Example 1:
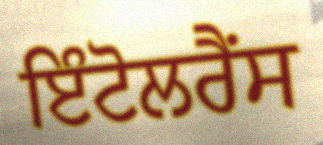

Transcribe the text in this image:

ਇੰਟੋਲਰੈਂਸ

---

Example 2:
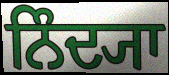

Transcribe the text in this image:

ਨਿੰਦ੍ਯਾ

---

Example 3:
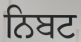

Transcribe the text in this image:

ਨਿਬਟ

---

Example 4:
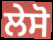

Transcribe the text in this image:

ਲੇਸੋ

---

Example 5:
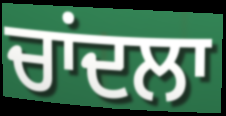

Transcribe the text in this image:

ਚਾਂਦਲਾ